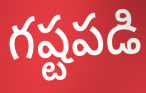
గష్టపడి